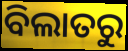
ବିଲାତରୁ